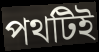
পথটিই